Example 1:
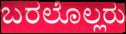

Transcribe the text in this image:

ಬರಲೊಲ್ಲರು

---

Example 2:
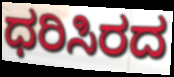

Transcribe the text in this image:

ಧರಿಸಿರದ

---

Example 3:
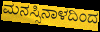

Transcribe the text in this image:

ಮನಸ್ಸಿನಾಳದಿಂದ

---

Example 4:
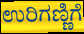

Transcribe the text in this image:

ಉರಿಗಣ್ಣಿಗೆ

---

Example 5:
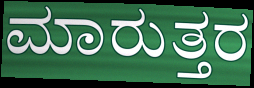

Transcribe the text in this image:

ಮಾರುತ್ತರ